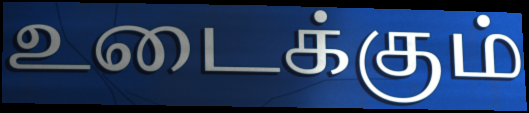
உடைக்கும்